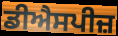
ਡੀਐਸਪੀਜ਼